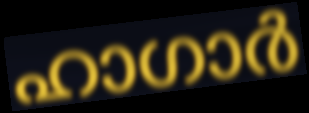
ഹാഗാർ